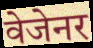
वेजेनर